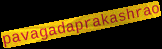
pavagadaprakashrao